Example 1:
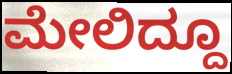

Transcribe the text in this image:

ಮೇಲಿದ್ದೂ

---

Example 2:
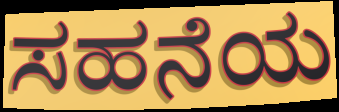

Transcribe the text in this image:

ಸಹನೆಯ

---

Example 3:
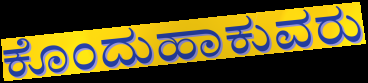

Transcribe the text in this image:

ಕೊಂದುಹಾಕುವರು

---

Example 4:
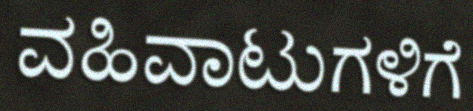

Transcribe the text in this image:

ವಹಿವಾಟುಗಳಿಗೆ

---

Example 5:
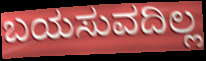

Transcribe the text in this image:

ಬಯಸುವದಿಲ್ಲ